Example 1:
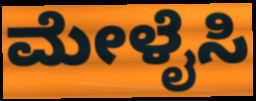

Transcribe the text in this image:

ಮೇಳೈಸಿ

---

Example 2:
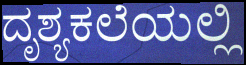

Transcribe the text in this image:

ದೃಶ್ಯಕಲೆಯಲ್ಲಿ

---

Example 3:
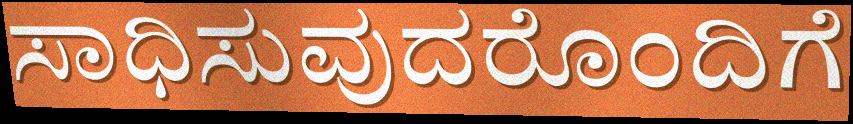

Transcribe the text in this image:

ಸಾಧಿಸುವುದರೊಂದಿಗೆ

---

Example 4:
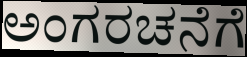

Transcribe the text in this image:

ಅಂಗರಚನೆಗೆ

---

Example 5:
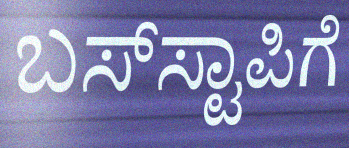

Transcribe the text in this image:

ಬಸ್‌ಸ್ಟಾಪಿಗೆ